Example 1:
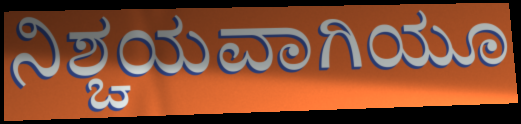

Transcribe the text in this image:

ನಿಶ್ಚಯವಾಗಿಯೂ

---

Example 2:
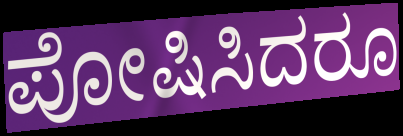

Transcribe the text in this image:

ಪೋಷಿಸಿದರೂ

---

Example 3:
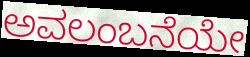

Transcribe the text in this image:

ಅವಲಂಬನೆಯೇ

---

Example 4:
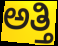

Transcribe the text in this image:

ಅತ್ತಿ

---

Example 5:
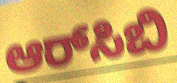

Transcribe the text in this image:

ಆರ್‌ಸಿಬಿ